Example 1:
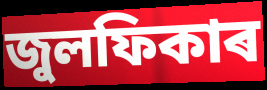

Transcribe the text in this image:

জুলফিকাৰ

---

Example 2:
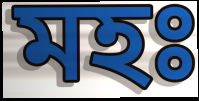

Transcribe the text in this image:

মহঃ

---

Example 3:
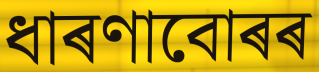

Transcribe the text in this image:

ধাৰণাবোৰৰ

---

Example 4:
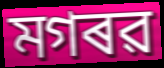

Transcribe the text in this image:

মগৰৱ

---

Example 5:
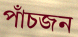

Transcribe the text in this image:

পাঁচজন